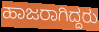
ಹಾಜರಾಗಿದ್ದರು